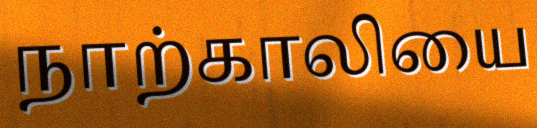
நாற்காலியை